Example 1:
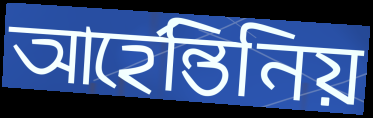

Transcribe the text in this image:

আর্হেন্তিনিয়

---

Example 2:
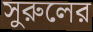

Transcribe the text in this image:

সুরুলের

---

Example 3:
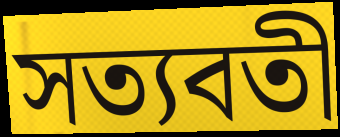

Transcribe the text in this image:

সত্যবতী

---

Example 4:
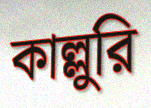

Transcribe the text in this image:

কাল্লুরি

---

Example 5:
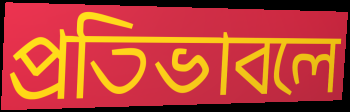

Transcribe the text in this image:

প্রতিভাবলে